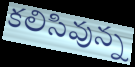
కలిసివున్న